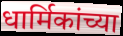
धार्मिकांच्या